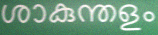
ശാകുന്തളം